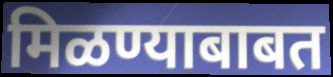
मिळण्याबाबत